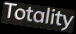
Totality